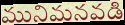
మునిమనవడి